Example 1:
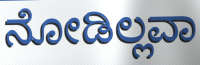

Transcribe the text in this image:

ನೋಡಿಲ್ಲವಾ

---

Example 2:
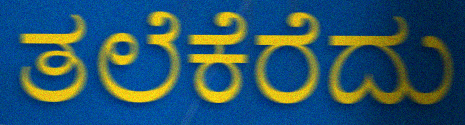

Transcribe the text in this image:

ತಲೆಕೆರೆದು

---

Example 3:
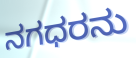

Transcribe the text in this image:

ನಗಧರನು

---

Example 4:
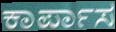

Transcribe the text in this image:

ಕಾರ್ಪಾಸ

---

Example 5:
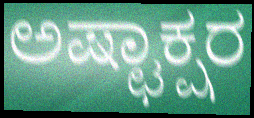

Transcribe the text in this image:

ಅಷ್ಟಾಕ್ಷರ